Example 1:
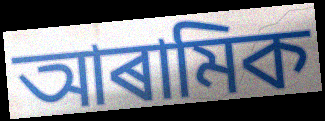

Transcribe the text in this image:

আৰামিক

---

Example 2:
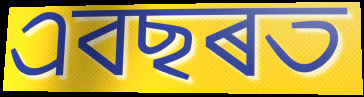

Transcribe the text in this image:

এবছৰত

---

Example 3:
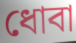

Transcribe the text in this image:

ধোবা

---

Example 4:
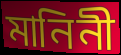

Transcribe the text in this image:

মানিনী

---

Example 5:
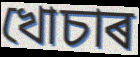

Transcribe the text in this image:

খোচাৰ